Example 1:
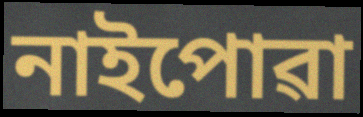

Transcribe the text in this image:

নাইপোৱা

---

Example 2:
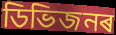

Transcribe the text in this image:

ডিভিজনৰ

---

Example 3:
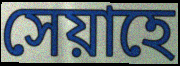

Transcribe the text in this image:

সেয়াহে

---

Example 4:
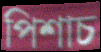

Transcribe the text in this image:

পিশাচ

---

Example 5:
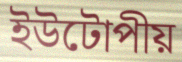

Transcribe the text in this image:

ইউটোপীয়